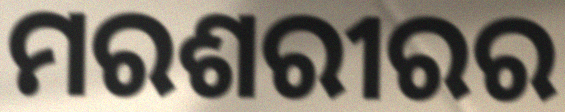
ମରଶରୀରର